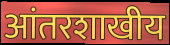
आंतरशाखीय